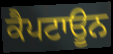
ਕੈਪਟਾਊਨ